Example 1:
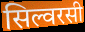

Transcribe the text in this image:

सिल्वरसी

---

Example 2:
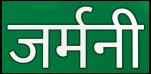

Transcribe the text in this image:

जर्मनी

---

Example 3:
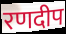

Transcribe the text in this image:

रणदीप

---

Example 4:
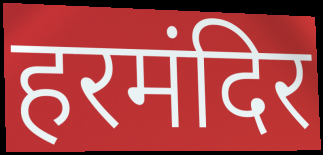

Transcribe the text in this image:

हरमंदिर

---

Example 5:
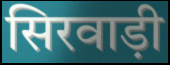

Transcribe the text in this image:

सिरवाड़ी